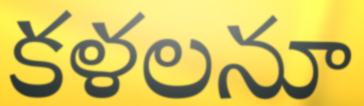
కళలనూ